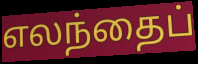
எலந்தைப்